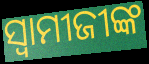
ସ୍ଵାମୀଜୀଙ୍କ